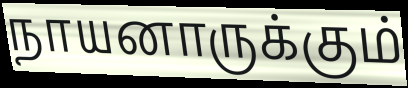
நாயனாருக்கும்